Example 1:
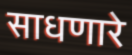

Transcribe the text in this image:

साधणारे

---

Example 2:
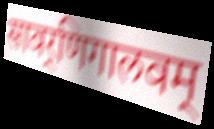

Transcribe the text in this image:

सावर्णिगालवम्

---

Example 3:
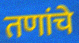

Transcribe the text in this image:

तणांचे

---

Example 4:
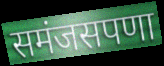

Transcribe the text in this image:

समंजसपणा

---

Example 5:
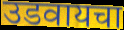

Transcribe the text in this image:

उडवायचा